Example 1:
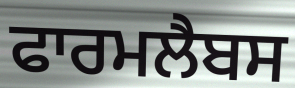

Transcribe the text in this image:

ਫਾਰਮਲੈਬਸ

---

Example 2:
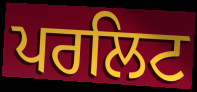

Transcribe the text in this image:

ਪਰਲਿਟ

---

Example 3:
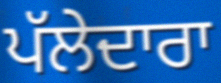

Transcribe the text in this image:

ਪੱਲੇਦਾਰਾ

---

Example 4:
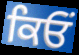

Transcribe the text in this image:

ਕਿਓਂ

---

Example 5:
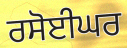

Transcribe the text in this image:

ਰਸੋਈਘਰ